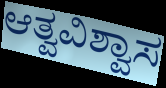
ಆತ್ವವಿಶ್ವಾಸ